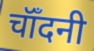
चॉँदनी